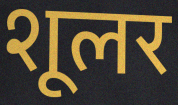
शूलर